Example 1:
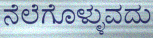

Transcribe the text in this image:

ನೆಲೆಗೊಳ್ಳುವದು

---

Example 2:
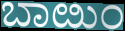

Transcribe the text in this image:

ಬಾೞುಂ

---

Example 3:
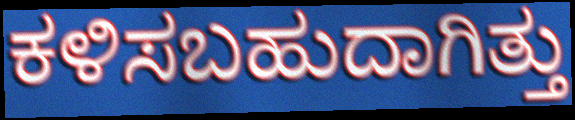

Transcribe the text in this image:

ಕಳಿಸಬಹುದಾಗಿತ್ತು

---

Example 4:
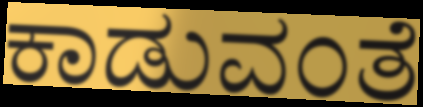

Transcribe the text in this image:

ಕಾಡುವಂತೆ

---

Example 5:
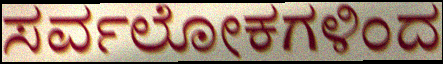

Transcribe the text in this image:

ಸರ್ವಲೋಕಗಳಿಂದ